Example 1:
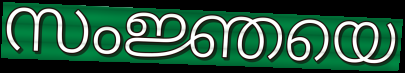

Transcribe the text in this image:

സംജ്ഞയെ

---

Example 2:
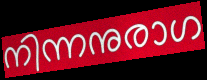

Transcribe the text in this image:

നിന്നനുരാഗ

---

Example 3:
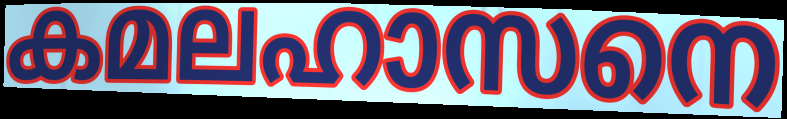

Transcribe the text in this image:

കമലഹാസനെ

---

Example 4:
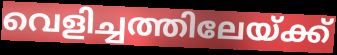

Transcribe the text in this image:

വെളിച്ചത്തിലേയ്ക്ക്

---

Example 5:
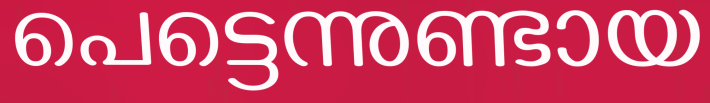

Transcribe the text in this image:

പെട്ടെന്നുണ്ടായ